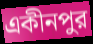
একীনপুর